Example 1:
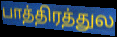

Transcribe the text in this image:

பாத்திரத்துல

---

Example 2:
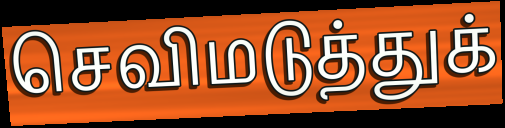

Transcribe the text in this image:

செவிமடுத்துக்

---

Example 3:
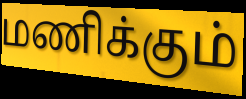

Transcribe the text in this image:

மணிக்கும்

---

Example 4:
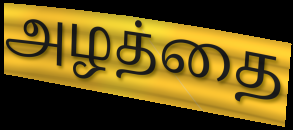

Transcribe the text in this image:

அழத்தை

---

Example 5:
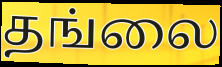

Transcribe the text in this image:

தங்லை